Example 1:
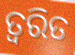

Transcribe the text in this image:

ତ୍ଵରିତ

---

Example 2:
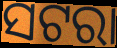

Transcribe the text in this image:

ସଟରା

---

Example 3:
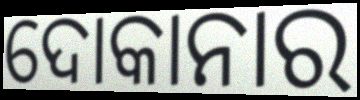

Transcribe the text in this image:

ଦୋକାନାର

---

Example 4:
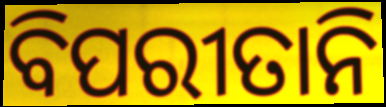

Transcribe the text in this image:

ବିପରୀତାନି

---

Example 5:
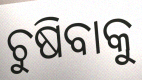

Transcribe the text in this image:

ଚୁଷିବାକୁ